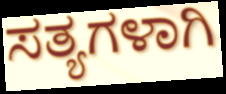
ಸತ್ಯಗಳಾಗಿ